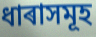
ধাৰাসমূহ